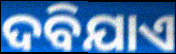
ଦବିଯାଏ